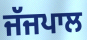
ਜੱਜਪਾਲ